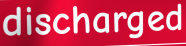
discharged